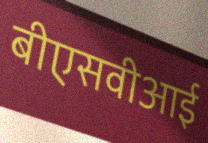
बीएसवीआई